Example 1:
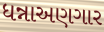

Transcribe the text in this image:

ધન્નાઅણગાર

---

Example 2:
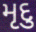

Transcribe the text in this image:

મૃદુ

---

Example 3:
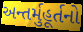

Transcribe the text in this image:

અન્તર્મુહૂર્તનો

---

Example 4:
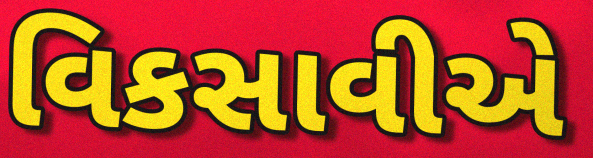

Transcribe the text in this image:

વિકસાવીએ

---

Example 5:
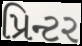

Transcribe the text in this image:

પ્રિન્ટર